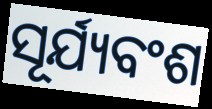
ସୂର୍ଯ୍ୟବଂଶ